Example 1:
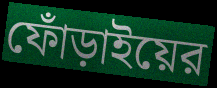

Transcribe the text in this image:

ফোঁড়াইয়ের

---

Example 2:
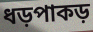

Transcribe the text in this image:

ধড়পাকড়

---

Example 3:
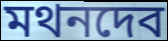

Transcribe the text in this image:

মথনদেব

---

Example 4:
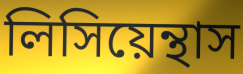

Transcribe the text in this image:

লিসিয়েন্থাস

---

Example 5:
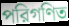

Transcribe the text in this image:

পরিগণিত